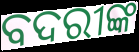
ବଦରୀଙ୍କ